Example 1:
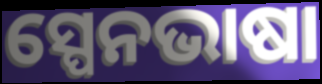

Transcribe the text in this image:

ସ୍ପେନଭାଷା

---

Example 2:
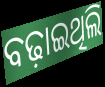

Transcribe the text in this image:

ବଢ଼ାଇଥିଲି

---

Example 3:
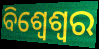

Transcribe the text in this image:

ବିଶ୍ୱେଶ୍ୱର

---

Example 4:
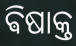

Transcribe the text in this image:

ଵିଷାକ୍ତ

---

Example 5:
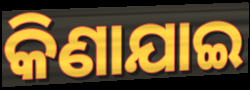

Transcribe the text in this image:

କିଣାଯାଇ